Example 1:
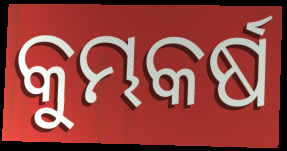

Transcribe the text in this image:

କୁମ୍ଭକର୍ଷ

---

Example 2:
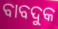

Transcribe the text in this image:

ବାବଦୁକ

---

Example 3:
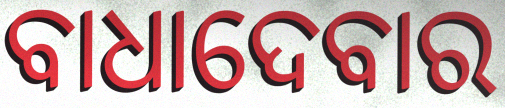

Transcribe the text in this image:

ବାଧାଦେବାର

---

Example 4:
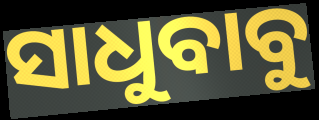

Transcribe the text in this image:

ସାଧୁବାବୁ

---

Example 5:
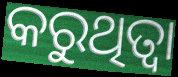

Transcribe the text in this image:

କରୁଥିତ୍ବା